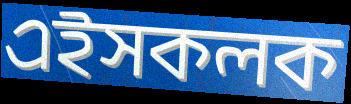
এইসকলক